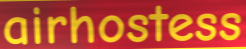
airhostess